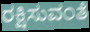
ರಕ್ಷಿಸುವಂತೆ